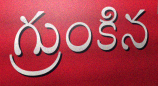
గ్రుంకిన